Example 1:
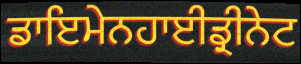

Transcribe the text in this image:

ਡਾਇਮੇਨਹਾਈਡ੍ਰੀਨੇਟ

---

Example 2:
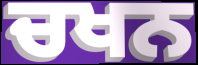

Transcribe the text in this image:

ਚਖਨ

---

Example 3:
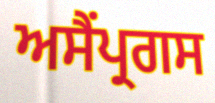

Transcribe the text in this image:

ਅਸੈਂਪ੍ਰਗਸ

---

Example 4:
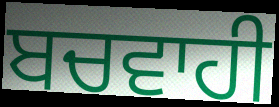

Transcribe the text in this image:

ਬਚਵਾਹੀ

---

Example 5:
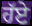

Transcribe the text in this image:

ਹੱਏ